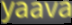
yaava